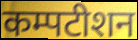
कम्पटीशन